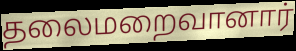
தலைமறைவானார்